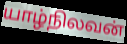
யாழ்நிலவன்